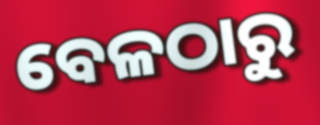
ବେଳଠାରୁ